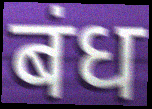
बंध